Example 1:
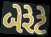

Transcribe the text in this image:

બેરેટે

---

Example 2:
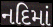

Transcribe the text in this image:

નદિમાં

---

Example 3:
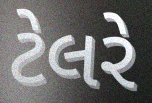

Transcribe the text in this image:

ટેલરે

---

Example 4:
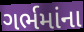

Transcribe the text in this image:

ગર્ભમાંના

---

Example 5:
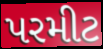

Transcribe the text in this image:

પરમીટ